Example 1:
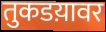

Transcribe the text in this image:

तुकडय़ावर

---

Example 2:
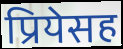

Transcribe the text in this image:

प्रियेसह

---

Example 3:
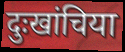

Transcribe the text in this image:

दुःखांचिया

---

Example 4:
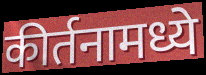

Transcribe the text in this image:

कीर्तनामध्ये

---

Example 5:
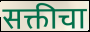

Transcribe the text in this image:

सक्तीचा